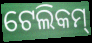
ଟେଲିକମ୍